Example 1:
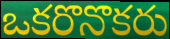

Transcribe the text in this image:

ఒకరొనొకరు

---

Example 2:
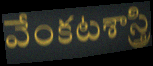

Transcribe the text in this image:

వేంకటశాస్త్రి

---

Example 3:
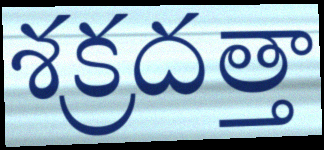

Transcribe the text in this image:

శక్రదత్తా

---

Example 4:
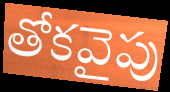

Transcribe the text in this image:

తోకవైపు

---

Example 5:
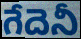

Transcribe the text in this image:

గేదెనీ